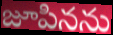
జూపినను